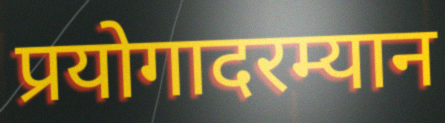
प्रयोगादरम्यान